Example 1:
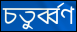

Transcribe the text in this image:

চতুর্ব্বণ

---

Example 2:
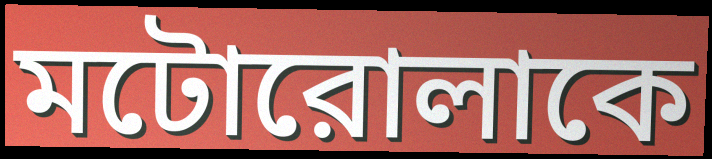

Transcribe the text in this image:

মটোরোলাকে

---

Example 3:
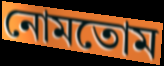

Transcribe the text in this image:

নোমতোম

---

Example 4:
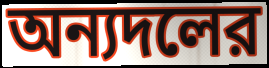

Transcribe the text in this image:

অন্যদলের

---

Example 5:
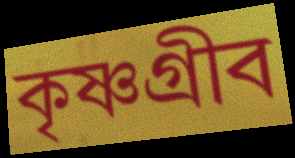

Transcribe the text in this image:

কৃষ্ণগ্রীব